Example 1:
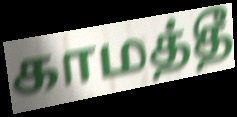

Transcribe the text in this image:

காமத்தீ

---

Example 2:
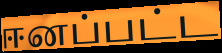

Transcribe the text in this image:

ஈனப்பட்ட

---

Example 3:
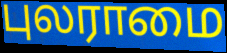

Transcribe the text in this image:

புலராமை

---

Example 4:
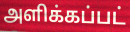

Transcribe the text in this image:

அளிக்கப்பட்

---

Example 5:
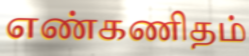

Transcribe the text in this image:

எண்கணிதம்